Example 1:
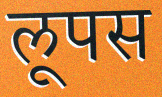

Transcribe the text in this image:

लूपस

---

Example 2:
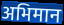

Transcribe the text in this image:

अभिमान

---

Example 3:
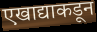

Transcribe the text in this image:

एखाद्याकडून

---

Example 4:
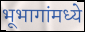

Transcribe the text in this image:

भूभागांमध्ये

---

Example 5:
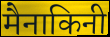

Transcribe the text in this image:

मैनाकिनी